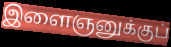
இளைஞனுக்குப்